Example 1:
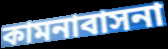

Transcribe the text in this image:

কামনাবাসনা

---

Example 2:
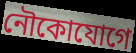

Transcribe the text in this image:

নৌকোযোগে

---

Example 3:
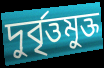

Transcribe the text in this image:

দুর্বৃত্তমুক্ত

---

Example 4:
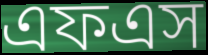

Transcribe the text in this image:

এফএস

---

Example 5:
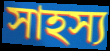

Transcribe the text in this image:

সাহস্য